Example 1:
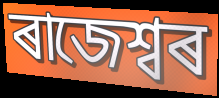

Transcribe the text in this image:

ৰাজেশ্বৰ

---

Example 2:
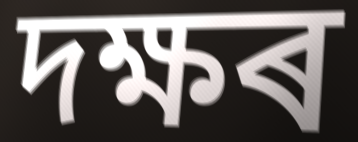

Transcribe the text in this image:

দক্ষৰ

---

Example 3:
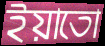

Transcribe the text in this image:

ইয়াতো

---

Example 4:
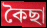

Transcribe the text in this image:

কৈছা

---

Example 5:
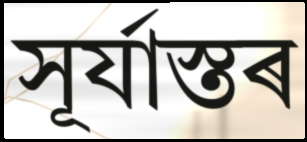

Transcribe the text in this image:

সূৰ্যাস্তৰ